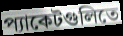
প্যাকেটগুলিতে